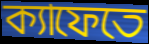
ক্যাফেতে